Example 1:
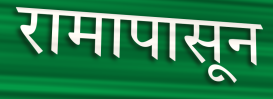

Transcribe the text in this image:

रामापासून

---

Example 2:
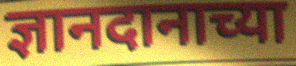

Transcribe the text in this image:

ज्ञानदानाच्या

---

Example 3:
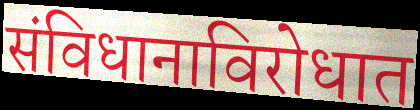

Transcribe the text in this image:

संविधानाविरोधात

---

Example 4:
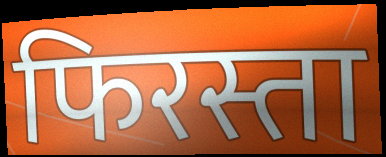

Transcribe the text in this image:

फिरस्ता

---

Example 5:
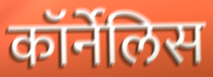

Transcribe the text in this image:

कॉर्नेलिस